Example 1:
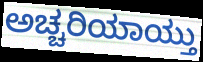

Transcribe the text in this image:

ಅಚ್ಚರಿಯಾಯ್ತು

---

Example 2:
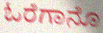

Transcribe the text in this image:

ಓರೆಗಾನೊ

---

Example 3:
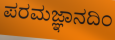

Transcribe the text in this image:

ಪರಮಜ್ಞಾನದಿಂ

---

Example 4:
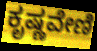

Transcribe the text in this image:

ಕೃಷ್ಣವೇಣಿ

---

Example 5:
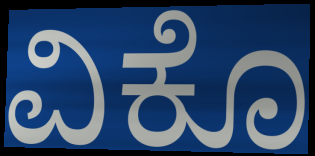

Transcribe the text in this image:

ವಿಕೊ